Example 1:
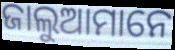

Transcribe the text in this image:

ଜାଲୁଆମାନେ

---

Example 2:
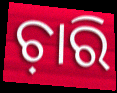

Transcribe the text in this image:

ଚ଼ାରି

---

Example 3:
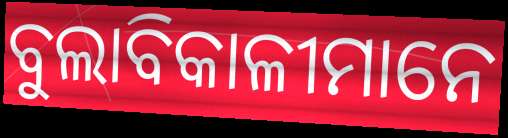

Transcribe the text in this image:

ବୁଲାବିକାଳୀମାନେ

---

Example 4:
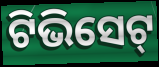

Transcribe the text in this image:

ଟିଭିସେଟ୍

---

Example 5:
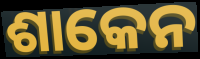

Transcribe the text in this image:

ଶାକେନ